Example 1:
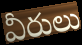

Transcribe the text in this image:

వీరులు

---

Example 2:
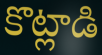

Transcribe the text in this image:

కొట్లాడి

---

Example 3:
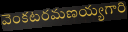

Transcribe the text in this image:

వెంకటరమణయ్యగారి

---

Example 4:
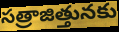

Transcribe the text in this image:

సత్రాజిత్తునకు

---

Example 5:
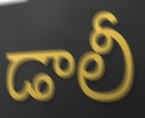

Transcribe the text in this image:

డాలీ